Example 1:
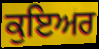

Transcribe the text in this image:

ਕੁਇਅਰ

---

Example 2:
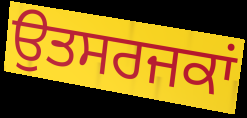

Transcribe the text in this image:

ਉਤਸਰਜਕਾਂ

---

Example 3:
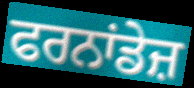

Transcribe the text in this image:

ਫਰਨਾਂਡੇਜ਼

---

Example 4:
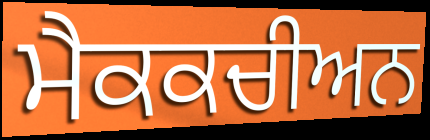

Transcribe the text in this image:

ਮੈਕਕਚੀਅਨ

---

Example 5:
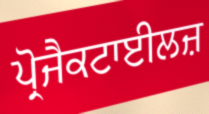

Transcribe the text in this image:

ਪ੍ਰੋਜੈਕਟਾਈਲਜ਼